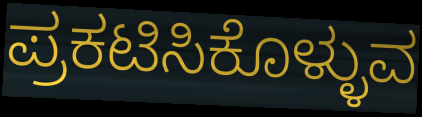
ಪ್ರಕಟಿಸಿಕೊಳ್ಳುವ